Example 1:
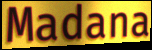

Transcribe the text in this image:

Madana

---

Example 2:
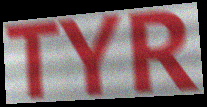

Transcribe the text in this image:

TYR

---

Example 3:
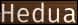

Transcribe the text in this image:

Hedua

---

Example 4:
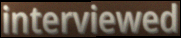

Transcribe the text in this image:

interviewed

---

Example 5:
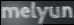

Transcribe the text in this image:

melyun